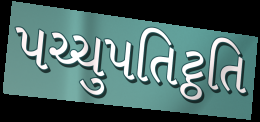
પચ્ચુપતિટ્ઠતિ